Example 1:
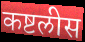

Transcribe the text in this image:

कष्टलीस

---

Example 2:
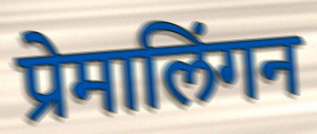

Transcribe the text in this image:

प्रेमालिंगन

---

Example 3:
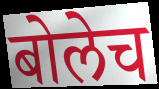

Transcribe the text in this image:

बोलेच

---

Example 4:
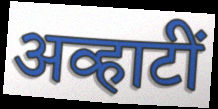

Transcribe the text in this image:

अव्हाटीं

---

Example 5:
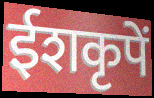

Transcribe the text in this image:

ईशकृपें